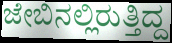
ಜೇಬಿನಲ್ಲಿರುತ್ತಿದ್ದ